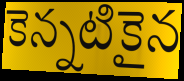
కెన్నటికైన